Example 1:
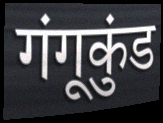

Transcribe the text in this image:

गंगूकुंड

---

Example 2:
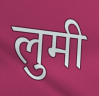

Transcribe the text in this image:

लुमी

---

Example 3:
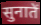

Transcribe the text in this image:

सुनातें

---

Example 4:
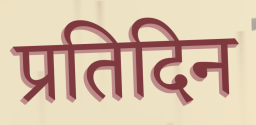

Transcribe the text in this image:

प्रतिदिन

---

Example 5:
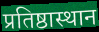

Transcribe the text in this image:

प्रतिष्ठास्थान